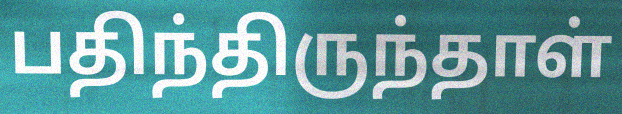
பதிந்திருந்தாள்